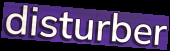
disturber